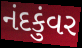
નંદકુંવર